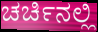
ಚರ್ಚಿನಲ್ಲಿ